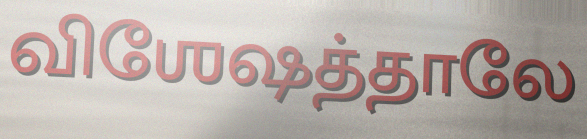
விஶேஷத்தாலே